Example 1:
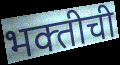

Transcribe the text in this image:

भक्‍तीची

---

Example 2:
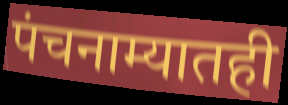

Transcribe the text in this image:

पंचनाम्यातही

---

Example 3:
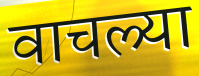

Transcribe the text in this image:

वाचल्या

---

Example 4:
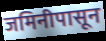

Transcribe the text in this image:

जमिनीपासून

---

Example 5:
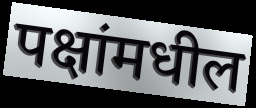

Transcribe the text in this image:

पक्षांमधील